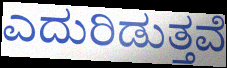
ಎದುರಿಡುತ್ತವೆ